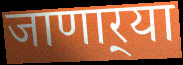
जाणार्या